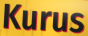
Kurus